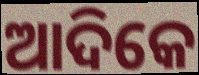
ଆଦିକେ